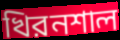
খিরনশাল